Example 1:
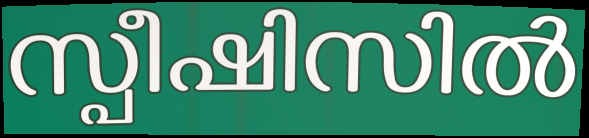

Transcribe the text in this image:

സ്പീഷിസിൽ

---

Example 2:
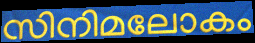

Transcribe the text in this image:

സിനിമലോകം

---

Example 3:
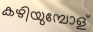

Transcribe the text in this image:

കഴിയുമ്പോള്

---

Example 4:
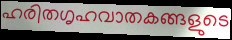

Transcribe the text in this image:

ഹരിതഗൃഹവാതകങ്ങളുടെ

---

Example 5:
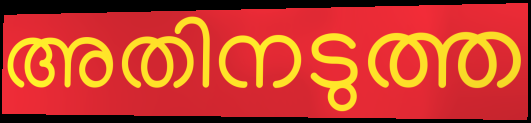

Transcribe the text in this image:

അതിനടുത്ത